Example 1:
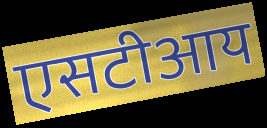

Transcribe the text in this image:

एसटीआय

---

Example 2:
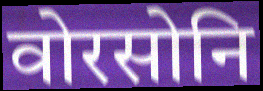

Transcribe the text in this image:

वोरसोनि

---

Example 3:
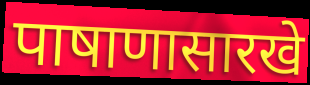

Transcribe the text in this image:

पाषाणासारखे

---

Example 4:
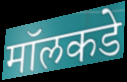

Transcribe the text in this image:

मॉलकडे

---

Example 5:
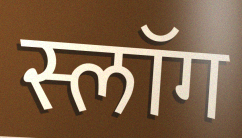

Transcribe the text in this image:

स्लॉग